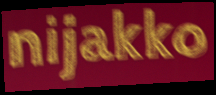
nijakko